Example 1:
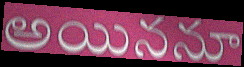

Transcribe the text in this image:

అయిననూ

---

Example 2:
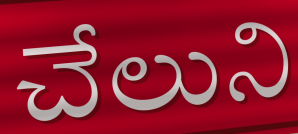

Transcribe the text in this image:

చేలుని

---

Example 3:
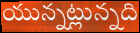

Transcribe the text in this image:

యున్నట్లున్నది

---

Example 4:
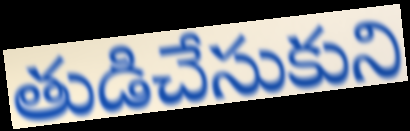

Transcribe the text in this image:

తుడిచేసుకుని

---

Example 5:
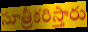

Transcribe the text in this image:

సూత్రీకరిస్తారు